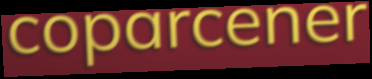
coparcener